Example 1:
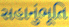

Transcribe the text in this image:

સહાનુંભૂતિ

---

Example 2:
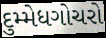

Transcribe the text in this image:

દુમ્મેધગોચરો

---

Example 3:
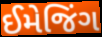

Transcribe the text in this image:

ઈમેજિંગ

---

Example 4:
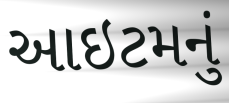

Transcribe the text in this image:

આઇટમનું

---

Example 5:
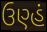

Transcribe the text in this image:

ઉણ્હં